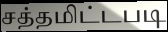
சத்தமிட்டபடி